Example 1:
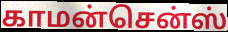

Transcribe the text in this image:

காமன்சென்ஸ்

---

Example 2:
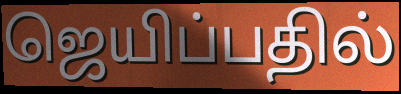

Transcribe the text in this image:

ஜெயிப்பதில்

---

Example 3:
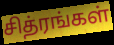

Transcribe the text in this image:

சித்ரங்கள்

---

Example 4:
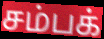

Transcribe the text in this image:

சம்பக்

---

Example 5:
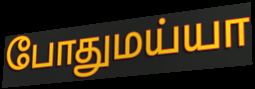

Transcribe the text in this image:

போதுமய்யா